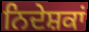
ਨਿਦੇਸ਼ਕਾਂ